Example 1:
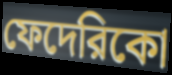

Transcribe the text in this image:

ফেদেরিকো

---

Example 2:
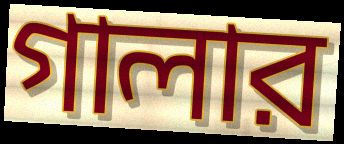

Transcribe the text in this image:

গালার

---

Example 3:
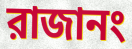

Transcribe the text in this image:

রাজানং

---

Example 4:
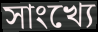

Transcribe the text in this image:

সাংখ্যে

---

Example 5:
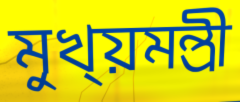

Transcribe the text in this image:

মুখ্য়মন্ত্রী